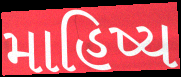
માહિષ્ય